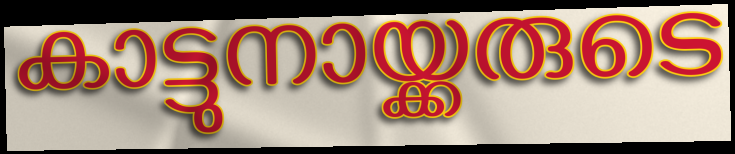
കാട്ടുനായ്ക്കരുടെ